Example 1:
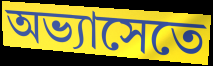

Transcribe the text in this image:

অভ্যাসেতে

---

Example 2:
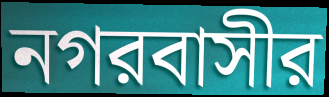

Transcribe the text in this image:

নগরবাসীর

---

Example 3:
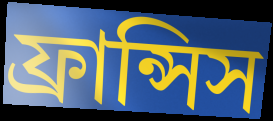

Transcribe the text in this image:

ফ্রান্সিস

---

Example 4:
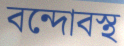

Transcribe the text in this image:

বন্দোবস্থ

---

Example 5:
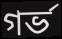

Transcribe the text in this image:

গর্ভ